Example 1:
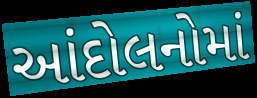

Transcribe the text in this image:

આંદોલનોમાં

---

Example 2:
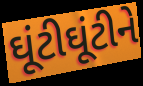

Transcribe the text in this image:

ઘૂંટીઘૂંટીને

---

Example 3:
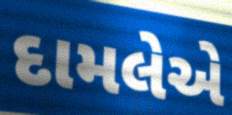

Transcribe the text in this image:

દામલેએ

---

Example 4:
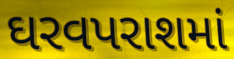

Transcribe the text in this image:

ઘરવપરાશમાં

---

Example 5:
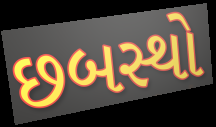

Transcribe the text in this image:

છબસ્થો